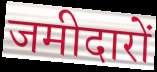
जमीदारों